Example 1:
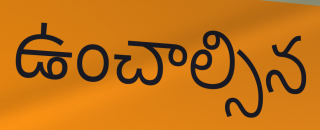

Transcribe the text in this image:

ఉంచాల్సిన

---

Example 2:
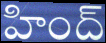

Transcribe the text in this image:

హింద్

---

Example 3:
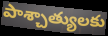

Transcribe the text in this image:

పాశ్చాత్యులకు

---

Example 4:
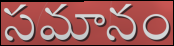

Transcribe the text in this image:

సమానం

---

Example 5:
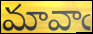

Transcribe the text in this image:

మావాఁ